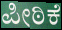
ಪೀಠಿಕೆ